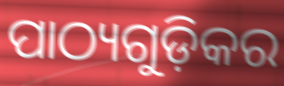
ପାଠ୍ୟଗୁଡ଼ିକର